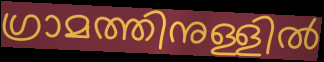
ഗ്രാമത്തിനുള്ളിൽ